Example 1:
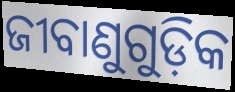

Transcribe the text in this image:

ଜୀବାଣୁଗୁଡ଼ିକ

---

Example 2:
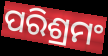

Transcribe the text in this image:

ପରିଶ୍ରମଂ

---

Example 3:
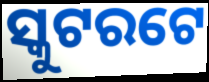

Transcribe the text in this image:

ସ୍କୁଟରଟେ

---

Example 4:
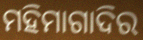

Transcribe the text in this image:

ମହିମାଗାଦିର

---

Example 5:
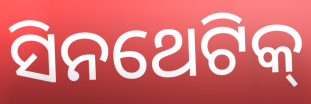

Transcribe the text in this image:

ସିନଥେଟିକ୍